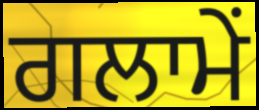
ਗਲਾਮੇਂ